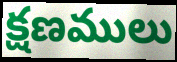
క్షణములు